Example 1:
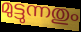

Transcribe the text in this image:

മുട്ടുന്നതും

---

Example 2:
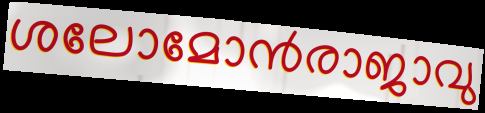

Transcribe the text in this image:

ശലോമോൻരാജാവു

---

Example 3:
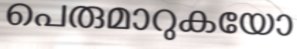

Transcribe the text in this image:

പെരുമാറുകയോ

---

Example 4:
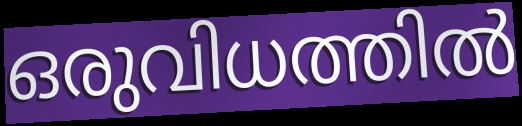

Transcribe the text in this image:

ഒരുവിധത്തിൽ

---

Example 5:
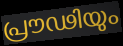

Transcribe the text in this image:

പ്രൗഢിയും